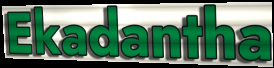
Ekadantha